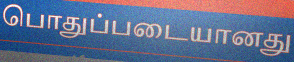
பொதுப்படையானது